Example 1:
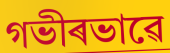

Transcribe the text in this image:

গভীৰভাৱে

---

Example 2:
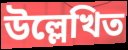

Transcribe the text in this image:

উল্লেখিত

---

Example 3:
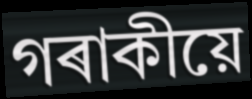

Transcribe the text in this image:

গৰাকীয়ে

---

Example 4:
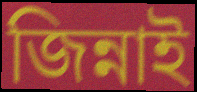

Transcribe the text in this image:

জিন্নাই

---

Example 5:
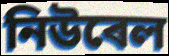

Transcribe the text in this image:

নিউৰেল